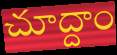
చూద్దాం